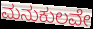
ಮನುಕುಲವೇ